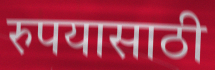
रुपयासाठी